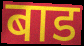
बाड